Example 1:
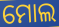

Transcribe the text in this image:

ମୋଲ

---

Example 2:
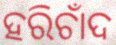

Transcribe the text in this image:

ହରିଚାଁଦ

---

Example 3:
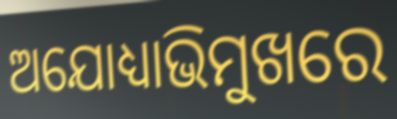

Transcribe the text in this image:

ଅଯୋଧ୍ୟାଭିମୁଖରେ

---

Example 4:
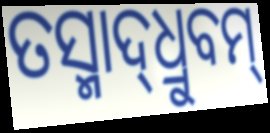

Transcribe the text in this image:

ତସ୍ମାଦ୍‌ଧ୍ରୁବମ୍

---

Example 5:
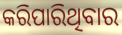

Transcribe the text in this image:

କରିପାରିଥିବାର